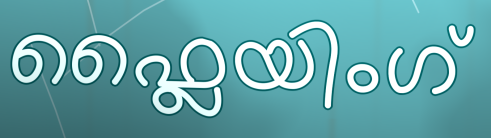
ഫ്ലൈയിംഗ്